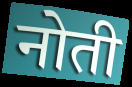
नोती